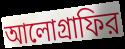
আলোগ্রাফির